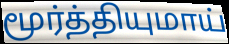
மூர்த்தியுமாய்